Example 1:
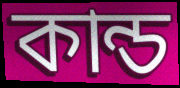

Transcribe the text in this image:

কান্ড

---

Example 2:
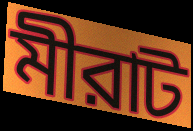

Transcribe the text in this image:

মীরাট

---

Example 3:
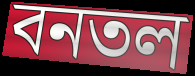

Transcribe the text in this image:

বনতল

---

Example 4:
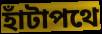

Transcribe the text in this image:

হাঁটাপথে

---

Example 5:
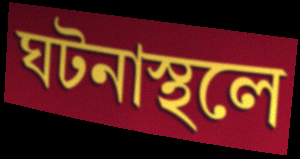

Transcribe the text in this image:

ঘটনাস্থলে